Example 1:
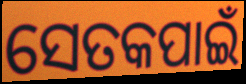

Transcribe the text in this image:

ସେତକପାଇଁ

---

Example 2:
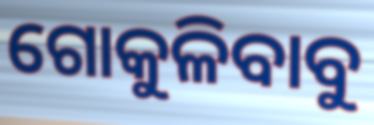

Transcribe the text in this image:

ଗୋକୁଳିବାବୁ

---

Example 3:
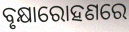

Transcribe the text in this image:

ବୃକ୍ଷାରୋହଣରେ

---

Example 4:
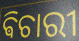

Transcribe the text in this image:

ଵିଚାରୀ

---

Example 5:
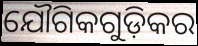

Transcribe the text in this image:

ଯୌଗିକଗୁଡ଼ିକର